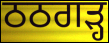
ਠਠਗੜ੍ਹ